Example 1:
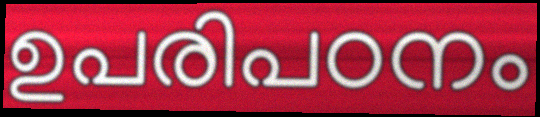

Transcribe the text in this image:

ഉപരിപഠനം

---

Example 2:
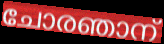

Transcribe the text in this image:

ചോരഞാന്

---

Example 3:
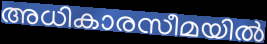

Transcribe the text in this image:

അധികാരസീമയിൽ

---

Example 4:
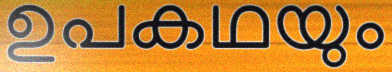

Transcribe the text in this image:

ഉപകഥയും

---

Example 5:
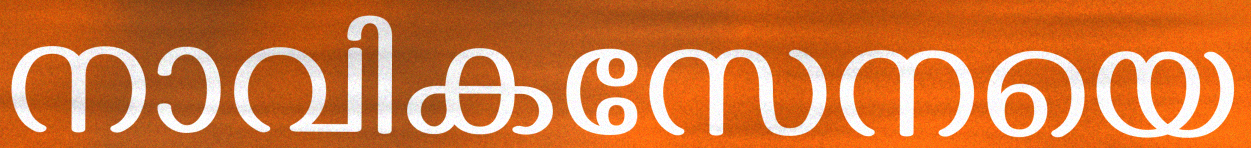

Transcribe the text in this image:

നാവികസേനയെ